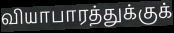
வியாபாரத்துக்குக்